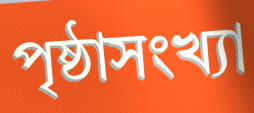
পৃষ্ঠাসংখ্যা